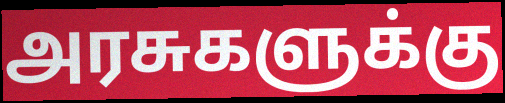
அரசுகளுக்கு